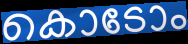
കൊടോം